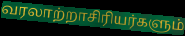
வரலாற்றாசிரியர்களும்